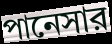
পানেসার